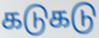
கடுகடு